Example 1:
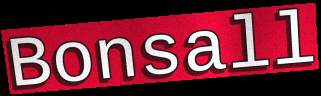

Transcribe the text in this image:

Bonsall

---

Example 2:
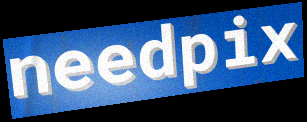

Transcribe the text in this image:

needpix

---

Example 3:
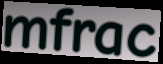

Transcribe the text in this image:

mfrac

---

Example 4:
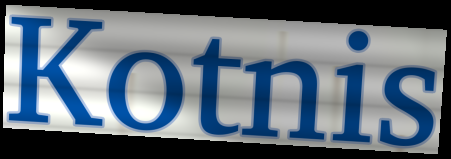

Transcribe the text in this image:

Kotnis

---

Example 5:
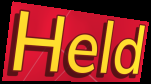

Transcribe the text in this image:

Held